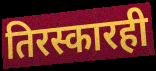
तिरस्कारही